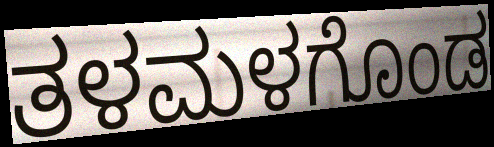
ತಳಮಳಗೊಂಡ